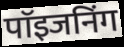
पॉइजनिंग